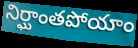
నిర్ఘాంతపోయాం